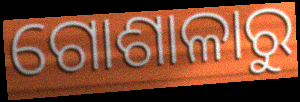
ଗୋଶାଳାରୁ